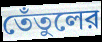
তেঁতুলের